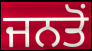
ਜਨਤੋਂ